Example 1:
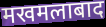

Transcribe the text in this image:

मखमलाबाद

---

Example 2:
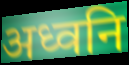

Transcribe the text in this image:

अध्वनि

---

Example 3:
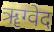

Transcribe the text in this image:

ॠग्वेद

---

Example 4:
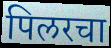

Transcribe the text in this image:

पिलरचा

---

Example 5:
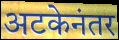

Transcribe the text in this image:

अटकेनंतर